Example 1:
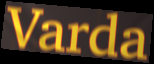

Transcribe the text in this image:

Varda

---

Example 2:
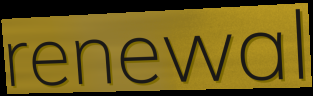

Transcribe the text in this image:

renewal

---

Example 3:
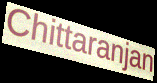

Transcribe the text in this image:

Chittaranjan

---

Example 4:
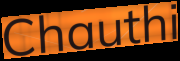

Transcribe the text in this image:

Chauthi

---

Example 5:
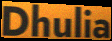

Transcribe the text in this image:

Dhulia